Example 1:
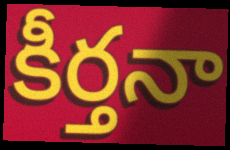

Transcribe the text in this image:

కీర్తనా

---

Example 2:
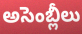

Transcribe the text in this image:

అసెంబ్లీలు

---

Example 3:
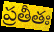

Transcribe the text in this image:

ప్రతీతః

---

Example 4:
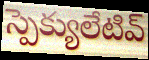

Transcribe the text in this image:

స్పెక్యులేటివ్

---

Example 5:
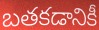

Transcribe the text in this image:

బతకడానికీ